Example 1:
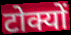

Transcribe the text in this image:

टोक्यों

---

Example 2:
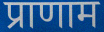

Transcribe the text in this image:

प्राणाम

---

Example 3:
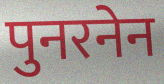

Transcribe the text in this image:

पुनरनेन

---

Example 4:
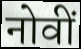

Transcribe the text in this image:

नोवीं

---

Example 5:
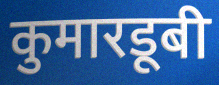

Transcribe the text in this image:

कुमारडूबी